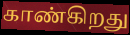
காண்கிறது